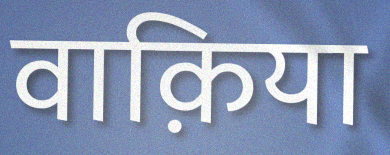
वाक़िया